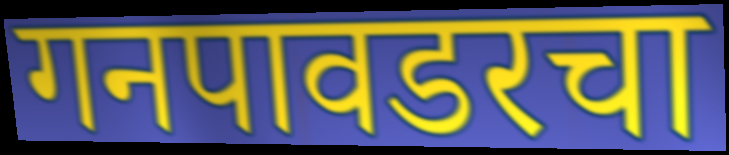
गनपावडरचा